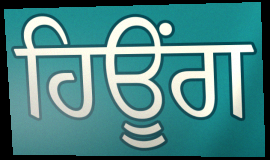
ਹਿਊੰਗ